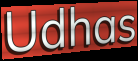
Udhas